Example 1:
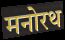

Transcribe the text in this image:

मनोरथ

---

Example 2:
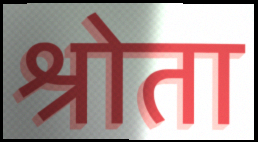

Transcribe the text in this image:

श्रोता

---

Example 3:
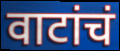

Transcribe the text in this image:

वाटांचं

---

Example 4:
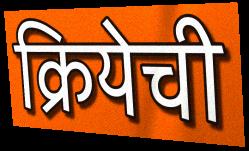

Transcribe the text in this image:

क्रियेची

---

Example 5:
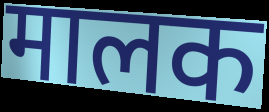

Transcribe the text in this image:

मालक